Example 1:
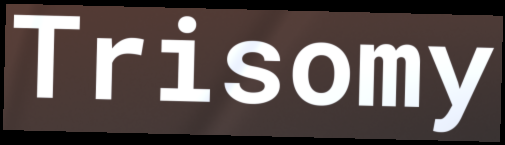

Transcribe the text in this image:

Trisomy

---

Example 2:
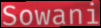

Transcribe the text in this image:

Sowani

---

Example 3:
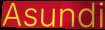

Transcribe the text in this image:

Asundi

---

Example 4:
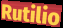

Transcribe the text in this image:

Rutilio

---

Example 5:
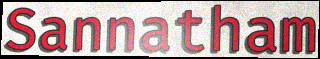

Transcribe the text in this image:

Sannatham